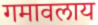
गमावलाय